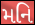
મનિ